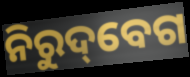
ନିରୁଦ୍‌ବେଗ